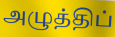
அழுத்திப்